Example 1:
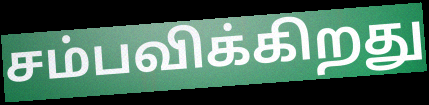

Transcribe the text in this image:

சம்பவிக்கிறது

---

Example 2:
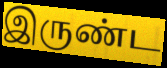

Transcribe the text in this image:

இருண்ட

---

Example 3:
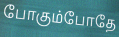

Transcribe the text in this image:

போகும்போதே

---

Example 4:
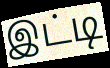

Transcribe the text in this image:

இட்டி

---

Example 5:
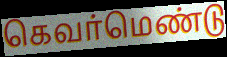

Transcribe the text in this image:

கெவர்மெண்டு